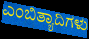
ಎಂಬಿತ್ಯಾದಿಗಳು